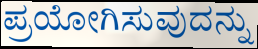
ಪ್ರಯೋಗಿಸುವುದನ್ನು